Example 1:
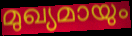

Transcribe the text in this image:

മുഖ്യമായും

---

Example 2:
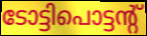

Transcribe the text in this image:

ടോട്ടിപൊട്ടന്റ്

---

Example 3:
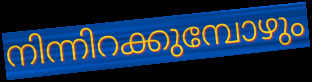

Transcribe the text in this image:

നിന്നിറക്കുമ്പോഴും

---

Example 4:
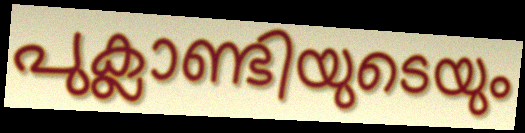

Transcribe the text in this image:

പുക്ലാണ്ടിയുടെയും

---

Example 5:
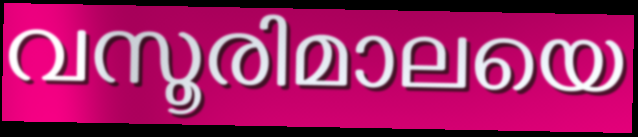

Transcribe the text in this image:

വസൂരിമാലയെ